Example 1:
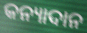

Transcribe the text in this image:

କନ୍ୟାଦାନ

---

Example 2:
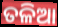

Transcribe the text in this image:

ତଳିଆ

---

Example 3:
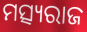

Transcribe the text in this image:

ମତ୍ସ୍ୟରାଜ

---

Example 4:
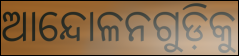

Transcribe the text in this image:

ଆନ୍ଦୋଳନଗୁଡ଼ିକୁ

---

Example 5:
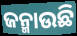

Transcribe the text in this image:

ଜନ୍ମାଉଛି